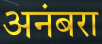
अनंबरा